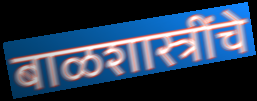
बाळशास्त्रींचे